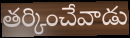
తర్కించేవాడు